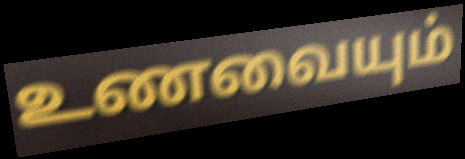
உணவையும்